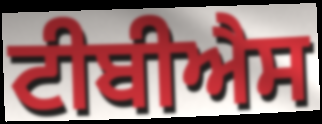
ਟੀਬੀਐਸ